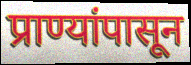
प्राण्यांपासून